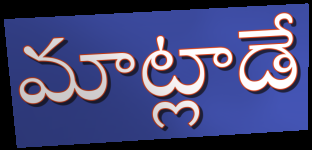
మాట్లాడే